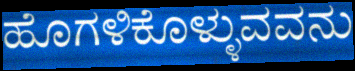
ಹೊಗಳಿಕೊಳ್ಳುವವನು